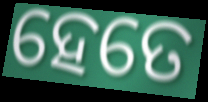
ହେତେ